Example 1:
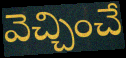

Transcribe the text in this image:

వెచ్చించే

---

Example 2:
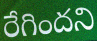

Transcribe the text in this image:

రేగిందని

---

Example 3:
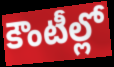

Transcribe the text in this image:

కౌంటీల్లో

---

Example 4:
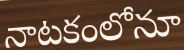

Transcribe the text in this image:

నాటకంలోనూ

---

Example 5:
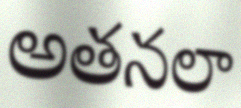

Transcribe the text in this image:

అతనలా